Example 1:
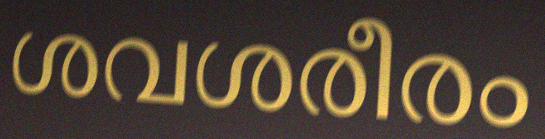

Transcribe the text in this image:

ശവശരീരം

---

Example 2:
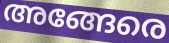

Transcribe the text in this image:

അങ്ങേരെ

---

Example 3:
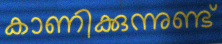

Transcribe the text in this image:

കാണിക്കുന്നുണ്ട്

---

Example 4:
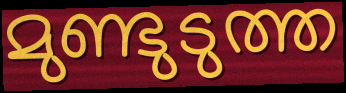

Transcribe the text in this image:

മുണ്ടുടുത്ത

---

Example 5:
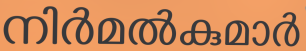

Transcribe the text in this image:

നിർമൽകുമാർ